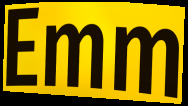
Emm